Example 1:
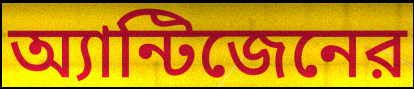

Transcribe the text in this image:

অ্যান্টিজেনের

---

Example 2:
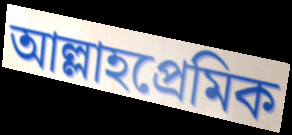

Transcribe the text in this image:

আল্লাহপ্রেমিক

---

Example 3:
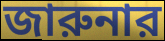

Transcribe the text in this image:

জারুনার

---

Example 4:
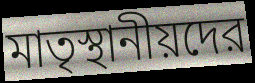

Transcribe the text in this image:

মাতৃস্থানীয়দের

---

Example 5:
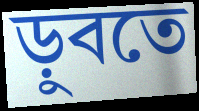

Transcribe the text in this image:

ড়ুবতে